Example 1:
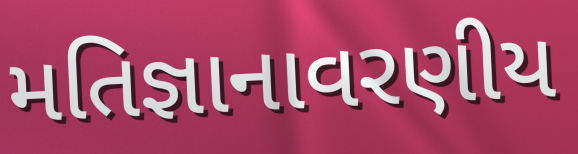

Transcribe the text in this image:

મતિજ્ઞાનાવરણીય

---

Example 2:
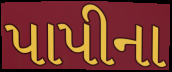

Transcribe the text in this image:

પાપીના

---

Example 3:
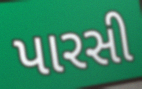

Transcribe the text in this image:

પારસી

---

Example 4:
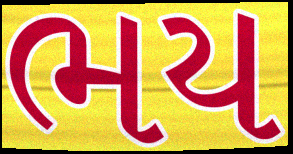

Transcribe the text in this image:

ભય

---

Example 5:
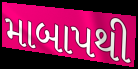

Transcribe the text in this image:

માબાપથી